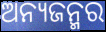
ଅନ୍ୟଜନ୍ମର